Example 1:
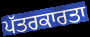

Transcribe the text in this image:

ਪੱਤਰਕਾਰਤਾ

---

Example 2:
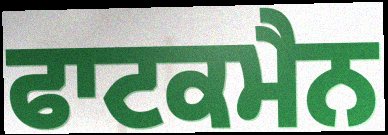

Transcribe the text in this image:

ਫਾਟਕਮੈਨ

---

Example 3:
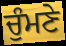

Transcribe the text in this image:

ਚੁੰਮਣੇ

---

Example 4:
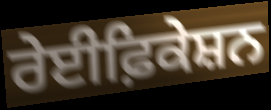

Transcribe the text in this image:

ਰੇਈਫ਼ਿਕੇਸ਼ਨ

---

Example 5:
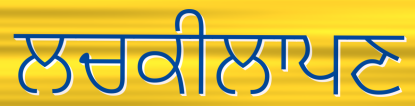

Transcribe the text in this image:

ਲਚਕੀਲਾਪਣ